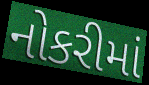
નોકરીમાં